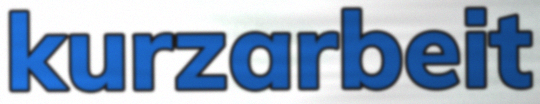
kurzarbeit